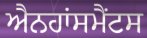
ਐਨਹਾਂਸਮੈਂਟਸ